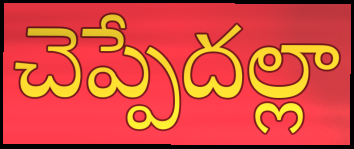
చెప్పేదల్లా